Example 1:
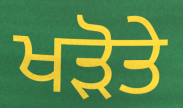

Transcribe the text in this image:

ਖੜੋਤੇ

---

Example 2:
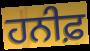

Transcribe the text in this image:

ਹਨੀਫ਼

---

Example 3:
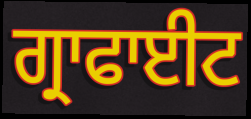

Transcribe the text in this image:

ਗ੍ਰਾਫਾਈਟ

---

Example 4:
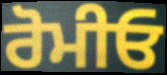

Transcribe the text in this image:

ਰੋਮੀਓ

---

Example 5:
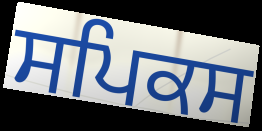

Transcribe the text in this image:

ਸਪਿਕਸ